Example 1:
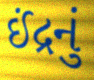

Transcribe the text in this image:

ઈંદ્રનું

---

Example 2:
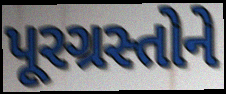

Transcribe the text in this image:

પૂરગ્રસ્તોને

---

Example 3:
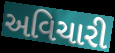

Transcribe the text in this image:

અવિચારી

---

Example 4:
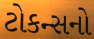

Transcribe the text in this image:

ટોકન્સનો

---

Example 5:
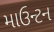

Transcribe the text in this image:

માઉન્ટન